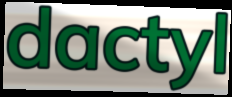
dactyl